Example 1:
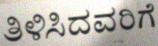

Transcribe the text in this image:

ತಿಳಿಸಿದವರಿಗೆ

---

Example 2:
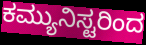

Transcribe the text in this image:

ಕಮ್ಯುನಿಸ್ಟರಿಂದ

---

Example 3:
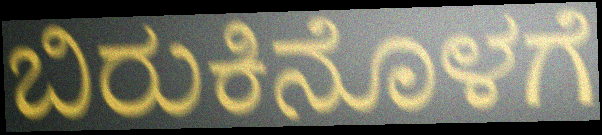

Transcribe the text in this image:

ಬಿರುಕಿನೊಳಗೆ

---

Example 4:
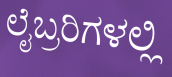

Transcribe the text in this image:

ಲೈಬ್ರರಿಗಳಲ್ಲಿ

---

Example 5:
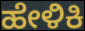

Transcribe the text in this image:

ಹೇಳಿಕಿ